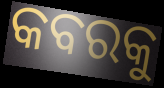
କବରକୁ